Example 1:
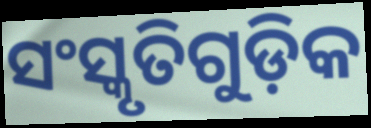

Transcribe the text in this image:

ସଂସ୍କୃତିଗୁଡ଼ିକ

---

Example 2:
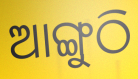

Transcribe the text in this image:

ଆଙ୍ଗୁଠି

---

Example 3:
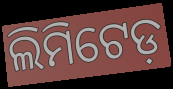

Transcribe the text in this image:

ଲିମିଟେଡ଼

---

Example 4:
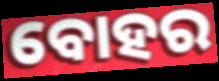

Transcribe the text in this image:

ବୋହର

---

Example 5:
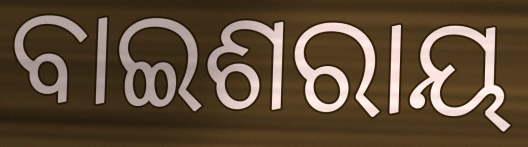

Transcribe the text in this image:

ବାଇଶରାୟ